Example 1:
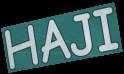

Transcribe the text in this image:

HAJI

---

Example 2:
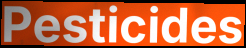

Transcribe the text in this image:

Pesticides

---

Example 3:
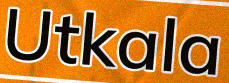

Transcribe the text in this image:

Utkala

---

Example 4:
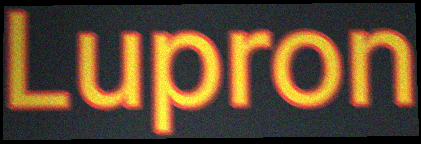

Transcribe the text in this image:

Lupron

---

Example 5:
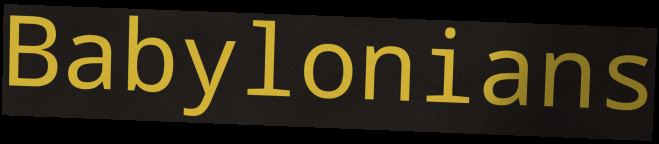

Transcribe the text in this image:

Babylonians